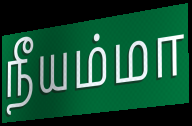
நீயம்மா